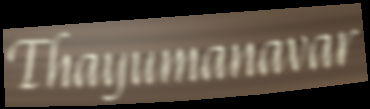
Thayumanavar